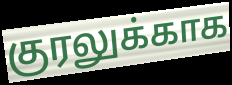
குரலுக்காக